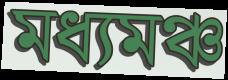
মধ্যমঞ্চ